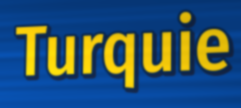
Turquie